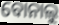
ବୋନାଲୁ